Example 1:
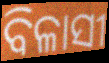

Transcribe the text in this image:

ବିଳାସୀ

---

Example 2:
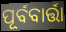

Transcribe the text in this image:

ପୂର୍ବବାର୍ତ୍ତା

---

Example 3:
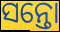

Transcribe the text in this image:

ସନ୍ତୋ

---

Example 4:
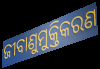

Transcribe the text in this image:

ଜୀବାଣୁମୁକ୍ତିକରଣ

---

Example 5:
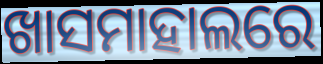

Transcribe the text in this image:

ଖାସମାହାଲରେ